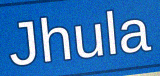
Jhula